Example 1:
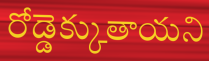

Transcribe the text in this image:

రోడ్డెక్కుతాయని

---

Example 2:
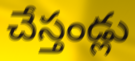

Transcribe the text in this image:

చేస్తండ్లు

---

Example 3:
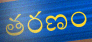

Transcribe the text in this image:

తరణం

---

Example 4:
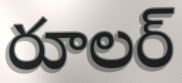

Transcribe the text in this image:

రూలర్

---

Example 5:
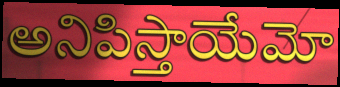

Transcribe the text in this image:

అనిపిస్తాయేమో